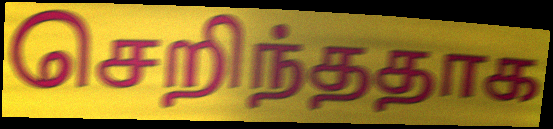
செறிந்ததாக